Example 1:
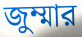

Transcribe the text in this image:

জুম্মার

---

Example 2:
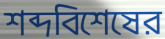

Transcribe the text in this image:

শব্দবিশেষের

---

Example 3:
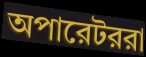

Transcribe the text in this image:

অপারেটররা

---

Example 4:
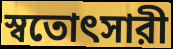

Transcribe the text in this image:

স্বতোৎসারী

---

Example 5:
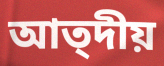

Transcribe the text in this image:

আত্দীয়